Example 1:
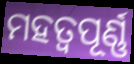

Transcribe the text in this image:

ମହତ୍ଵପୂର୍ଣ୍ଣ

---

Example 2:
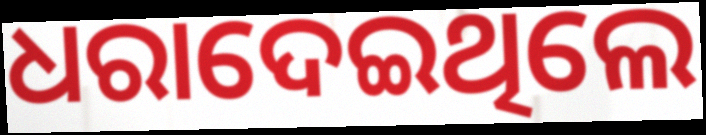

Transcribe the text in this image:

ଧରାଦେଇଥିଲେ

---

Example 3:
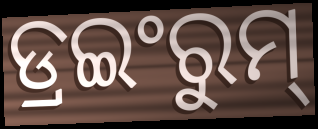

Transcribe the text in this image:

ଡ୍ରଇଂରୁମ୍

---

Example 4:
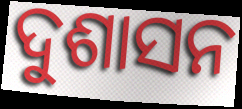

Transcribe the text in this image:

ଦୁଶାସନ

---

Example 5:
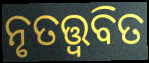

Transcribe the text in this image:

ନୃତତ୍ତ୍ୱବିତ